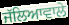
ਜੱਲਿਆਵਾਲੇ